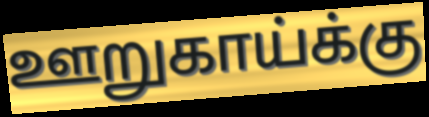
ஊறுகாய்க்கு